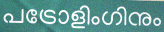
പട്രോളിംഗിനും